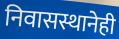
निवासस्थानेही